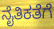
ನೈತಿಕತೆಗೆ